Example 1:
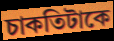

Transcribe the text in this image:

চাকতিটাকে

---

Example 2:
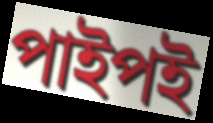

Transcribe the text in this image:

পাইপই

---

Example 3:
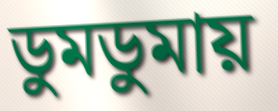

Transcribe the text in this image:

ডুমডুমায়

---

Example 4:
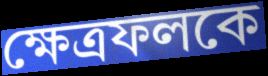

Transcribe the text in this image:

ক্ষেত্রফলকে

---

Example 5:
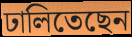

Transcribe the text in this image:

ঢালিতেছেন